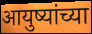
आयुष्यांच्या